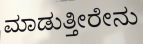
ಮಾಡುತ್ತೀರೇನು